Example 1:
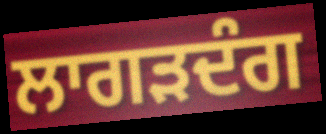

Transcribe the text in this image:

ਲਾਗੜਦੰਗ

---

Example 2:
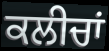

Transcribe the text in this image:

ਕਲੀਚਾਂ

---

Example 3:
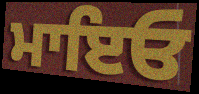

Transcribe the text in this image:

ਮਾਇਓ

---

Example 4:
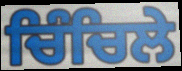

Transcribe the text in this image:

ਚਿੰਚਿਲੇ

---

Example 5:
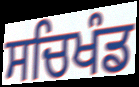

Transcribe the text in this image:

ਸਚਿਖੰਡ